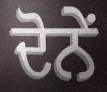
ਦੋਨੇਂ